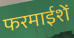
फरमाईशें